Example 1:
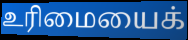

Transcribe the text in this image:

உரிமையைக்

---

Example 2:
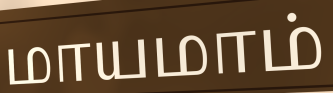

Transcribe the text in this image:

மாயமாம்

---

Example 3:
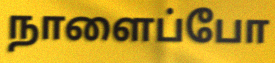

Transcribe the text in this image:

நாளைப்போ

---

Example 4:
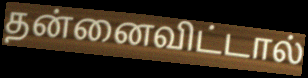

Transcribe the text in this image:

தன்னைவிட்டால்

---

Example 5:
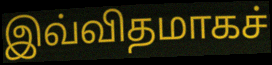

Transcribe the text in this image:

இவ்விதமாகச்